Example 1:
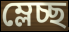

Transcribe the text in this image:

ম্লেচ্ছ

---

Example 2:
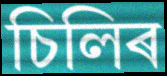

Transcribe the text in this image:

চিলিৰ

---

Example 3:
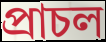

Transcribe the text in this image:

প্ৰাচল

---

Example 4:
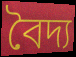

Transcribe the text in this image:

বৈদ্য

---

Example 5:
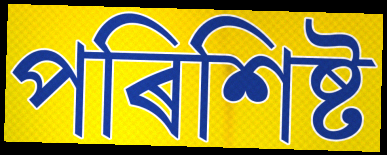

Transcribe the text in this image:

পৰিশিষ্ট